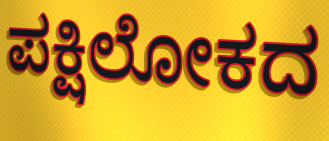
ಪಕ್ಷಿಲೋಕದ